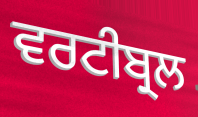
ਵਰਟੀਬ੍ਰਲ